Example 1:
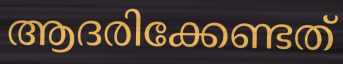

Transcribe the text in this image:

ആദരിക്കേണ്ടത്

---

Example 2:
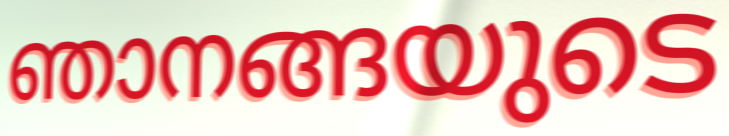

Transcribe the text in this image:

ഞാനങ്ങയുടെ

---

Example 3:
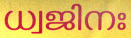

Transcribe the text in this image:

ധ്വജിനഃ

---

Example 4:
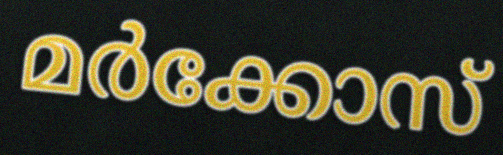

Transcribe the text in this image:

മർക്കോസ്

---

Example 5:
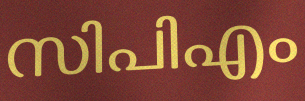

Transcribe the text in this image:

സിപിഎം